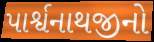
પાર્શ્વનાથજીનો